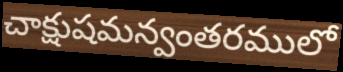
చాక్షుషమన్వంతరములో